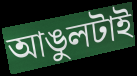
আঙুলটাই